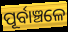
ପୂର୍ବାଞ୍ଚଳେ